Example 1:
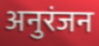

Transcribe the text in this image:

अनुरंजन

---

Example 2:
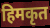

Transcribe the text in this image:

हिमकृत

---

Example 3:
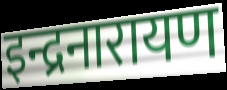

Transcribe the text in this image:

इन्द्रनारायण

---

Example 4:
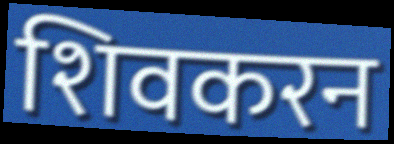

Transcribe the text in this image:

शिवकरन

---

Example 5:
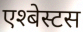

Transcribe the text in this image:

एश्बेस्टस